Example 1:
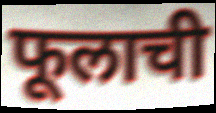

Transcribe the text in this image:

फूलाची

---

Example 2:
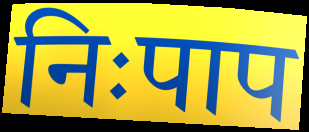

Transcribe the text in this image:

निःपाप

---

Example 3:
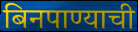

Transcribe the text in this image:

बिनपाण्याची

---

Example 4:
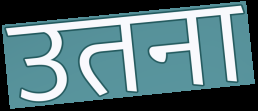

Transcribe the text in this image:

उतना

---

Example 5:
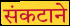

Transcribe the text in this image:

संकटाने